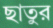
ছাতুর